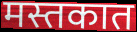
मस्तकात